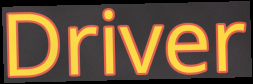
Driver